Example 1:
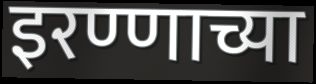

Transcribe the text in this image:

इरण्णाच्या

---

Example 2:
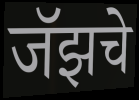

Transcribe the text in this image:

जॅझचे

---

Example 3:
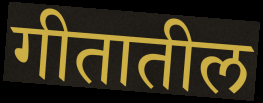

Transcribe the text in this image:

गीतातील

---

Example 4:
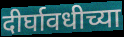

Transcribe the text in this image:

दीर्घावधीच्या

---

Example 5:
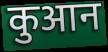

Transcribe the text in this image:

कुआन